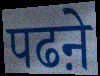
पढऩे